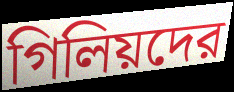
গিলিয়দের